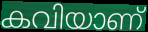
കവിയാണ്